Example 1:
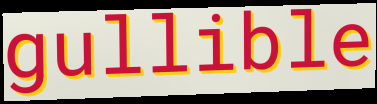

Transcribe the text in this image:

gullible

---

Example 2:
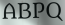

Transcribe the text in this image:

ABPQ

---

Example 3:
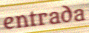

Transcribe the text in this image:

entrada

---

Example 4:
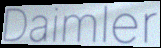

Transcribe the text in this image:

Daimler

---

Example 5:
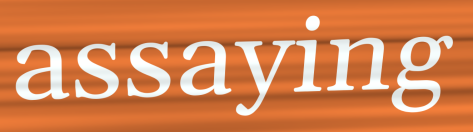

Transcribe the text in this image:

assaying